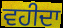
ਵਹੀਦਾ